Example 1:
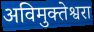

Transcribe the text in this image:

अविमुक्तेश्वरा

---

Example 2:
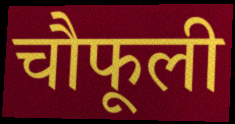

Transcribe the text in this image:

चौफूली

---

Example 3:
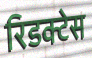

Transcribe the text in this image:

रिडक्टेस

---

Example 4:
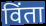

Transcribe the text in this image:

विंता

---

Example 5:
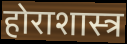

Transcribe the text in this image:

होराशास्त्र